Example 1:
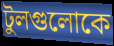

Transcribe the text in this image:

টুলগুলোকে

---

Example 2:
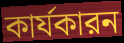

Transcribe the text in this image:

কার্যকারন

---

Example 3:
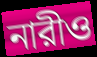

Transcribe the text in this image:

নারীও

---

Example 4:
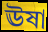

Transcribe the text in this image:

ঊষা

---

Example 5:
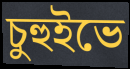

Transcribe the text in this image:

চুহুইভে